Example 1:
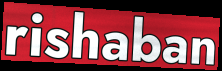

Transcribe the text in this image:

rishaban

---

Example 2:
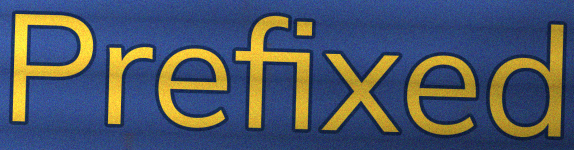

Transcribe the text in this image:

Prefixed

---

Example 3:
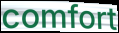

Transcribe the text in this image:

comfort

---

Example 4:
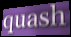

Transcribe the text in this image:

quash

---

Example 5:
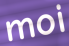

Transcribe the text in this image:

moi